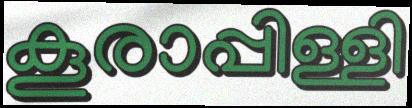
കൂരാപ്പിള്ളി